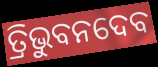
ତ୍ରିଭୁବନଦେବ